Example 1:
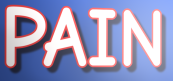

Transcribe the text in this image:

PAIN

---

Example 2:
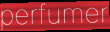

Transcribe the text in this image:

perfumer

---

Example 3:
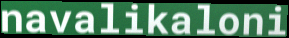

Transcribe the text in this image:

navalikaloni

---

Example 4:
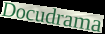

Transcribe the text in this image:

Docudrama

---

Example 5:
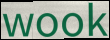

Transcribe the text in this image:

wook